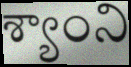
శ్యాంని